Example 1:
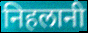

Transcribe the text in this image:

निहलानी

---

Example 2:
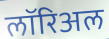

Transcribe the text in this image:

लॉरिअल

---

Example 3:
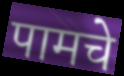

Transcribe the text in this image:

पामचे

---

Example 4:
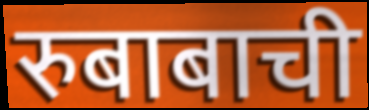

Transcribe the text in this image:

रुबाबाची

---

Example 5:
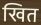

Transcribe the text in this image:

खित